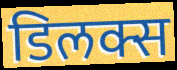
डिलक्स